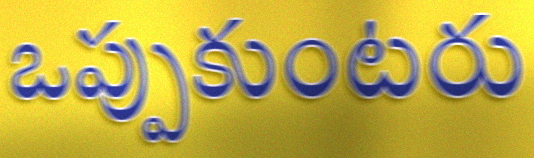
ఒప్పుకుంటరు